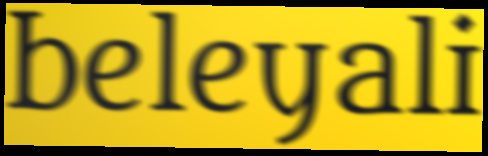
beleyali